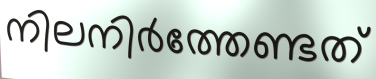
നിലനിർത്തേണ്ടത്